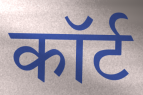
कॉर्ट